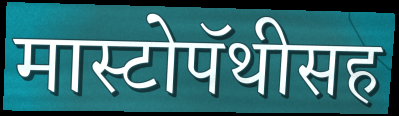
मास्टोपॅथीसह